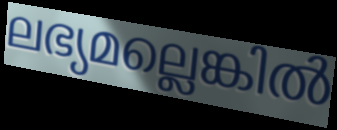
ലഭ്യമല്ലെങ്കിൽ